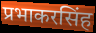
प्रभाकरसिंह